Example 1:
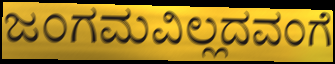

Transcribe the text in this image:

ಜಂಗಮವಿಲ್ಲದವಂಗೆ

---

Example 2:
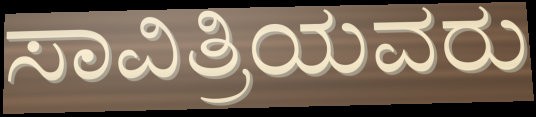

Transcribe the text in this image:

ಸಾವಿತ್ರಿಯವರು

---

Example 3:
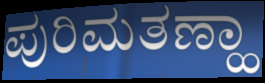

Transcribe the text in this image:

ಪುರಿಮತಣ್ಹಾ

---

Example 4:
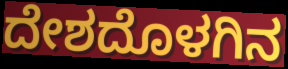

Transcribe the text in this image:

ದೇಶದೊಳಗಿನ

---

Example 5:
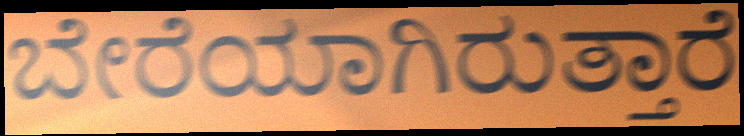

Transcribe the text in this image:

ಬೇರೆಯಾಗಿರುತ್ತಾರೆ